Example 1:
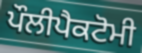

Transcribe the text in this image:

ਪੌਲੀਪੈਕਟੋਮੀ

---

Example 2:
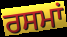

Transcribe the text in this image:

ਰਸਮਾਂ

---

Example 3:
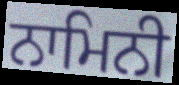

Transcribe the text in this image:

ਨਾਮਿਨੀ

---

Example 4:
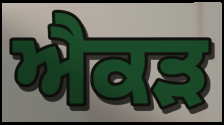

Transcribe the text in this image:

ਐਕੜ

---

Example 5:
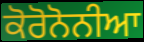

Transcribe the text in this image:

ਕੋਰੋਨੋਨੀਆ